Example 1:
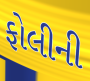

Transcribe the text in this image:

ફોલીની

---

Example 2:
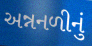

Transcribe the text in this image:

અન્નનળીનું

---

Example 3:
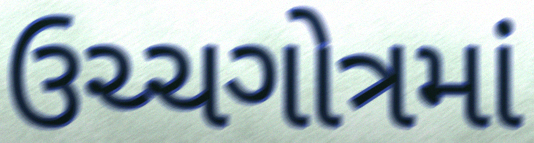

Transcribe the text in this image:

ઉચ્ચગોત્રમાં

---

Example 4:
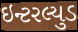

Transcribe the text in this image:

ઇન્ટરલ્યુડ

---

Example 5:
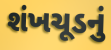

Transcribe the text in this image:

શંખચૂડનું